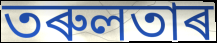
তৰুলতাৰ